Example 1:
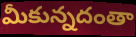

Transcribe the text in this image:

మీకున్నదంతా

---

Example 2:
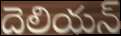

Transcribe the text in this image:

దెలియన్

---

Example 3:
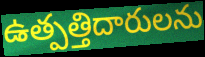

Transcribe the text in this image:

ఉత్పత్తిదారులను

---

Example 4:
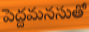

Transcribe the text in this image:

పెద్దమనసుతో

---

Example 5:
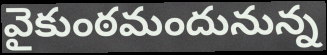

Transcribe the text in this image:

వైకుంఠమందునున్న